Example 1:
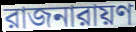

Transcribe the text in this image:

রাজনারায়ণ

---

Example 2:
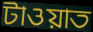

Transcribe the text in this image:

টাওয়াত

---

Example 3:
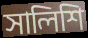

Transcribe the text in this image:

সালিশি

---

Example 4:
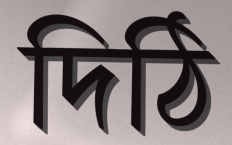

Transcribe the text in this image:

দিঠি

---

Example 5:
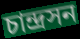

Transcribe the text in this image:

চান্দ্রসন